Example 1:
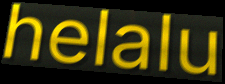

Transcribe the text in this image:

helalu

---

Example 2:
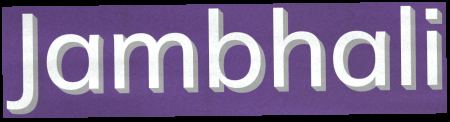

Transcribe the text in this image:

Jambhali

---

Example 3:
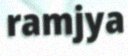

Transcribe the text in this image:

ramjya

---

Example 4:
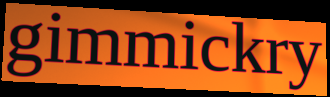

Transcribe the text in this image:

gimmickry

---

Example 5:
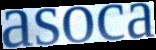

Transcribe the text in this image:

asoca